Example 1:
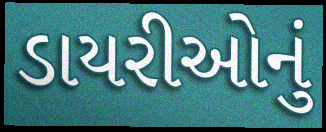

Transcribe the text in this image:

ડાયરીઓનું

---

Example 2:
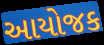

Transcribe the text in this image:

આયોજક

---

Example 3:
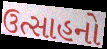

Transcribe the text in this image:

ઉત્સાહનો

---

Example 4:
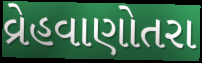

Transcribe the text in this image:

વ્રેહવાણોતરા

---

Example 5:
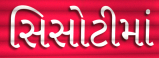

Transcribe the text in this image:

સિસોટીમાં